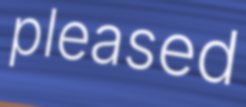
pleased